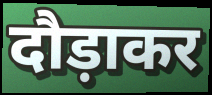
दौड़ाकर